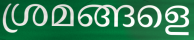
ശ്രമങ്ങളെ